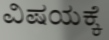
ವಿಷಯಕ್ಕೆ